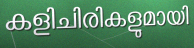
കളിചിരികളുമായി